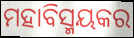
ମହାବିସ୍ମୟକର